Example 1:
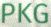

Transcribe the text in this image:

PKG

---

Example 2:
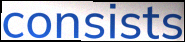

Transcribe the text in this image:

consists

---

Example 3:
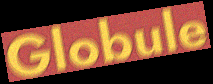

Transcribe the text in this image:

Globule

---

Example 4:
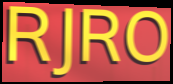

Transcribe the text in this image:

RJRO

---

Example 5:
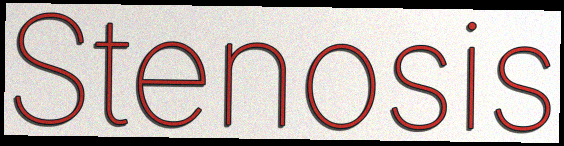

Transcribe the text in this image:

Stenosis